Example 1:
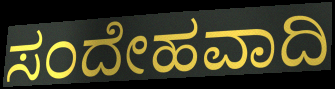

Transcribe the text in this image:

ಸಂದೇಹವಾದಿ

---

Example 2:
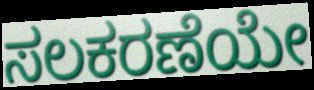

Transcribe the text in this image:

ಸಲಕರಣೆಯೇ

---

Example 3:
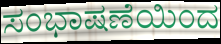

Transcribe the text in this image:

ಸಂಭಾಷಣೆಯಿಂದ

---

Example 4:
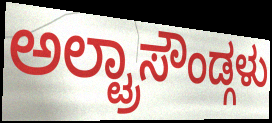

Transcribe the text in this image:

ಅಲ್ಟ್ರಾಸೌಂಡ್ಗಳು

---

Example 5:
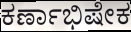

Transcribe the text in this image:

ಕರ್ಣಾಭಿಷೇಕ